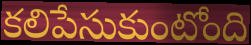
కలిపేసుకుంటోంది